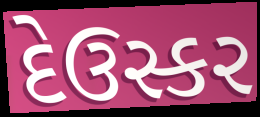
દેઉસ્કર